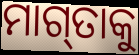
ମାଗ୍‌ତାକୁ